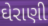
ઘેરાણી